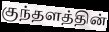
குந்தளத்தின்